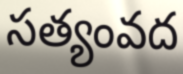
సత్యంవద